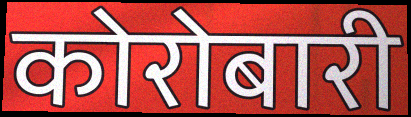
कोरोबारी